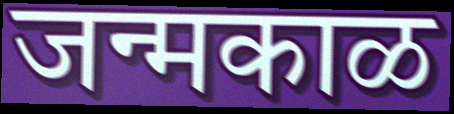
जन्मकाळ